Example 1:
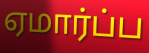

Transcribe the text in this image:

ஏமார்ப்ப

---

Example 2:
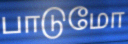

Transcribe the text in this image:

பாடுமோ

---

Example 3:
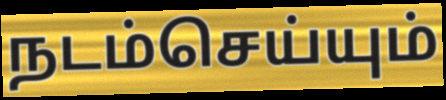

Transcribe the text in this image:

நடம்செய்யும்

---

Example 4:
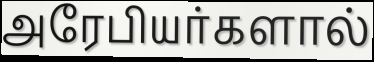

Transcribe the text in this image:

அரேபியர்களால்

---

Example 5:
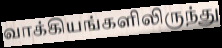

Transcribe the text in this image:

வாக்கியங்களிலிருந்து